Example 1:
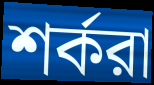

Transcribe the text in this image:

শর্করা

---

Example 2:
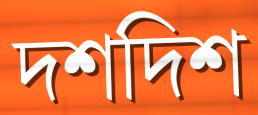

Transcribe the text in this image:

দশদিশ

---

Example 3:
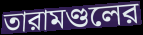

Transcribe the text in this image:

তারামণ্ডলের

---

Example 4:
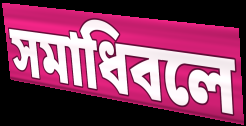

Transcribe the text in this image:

সমাধিবলে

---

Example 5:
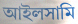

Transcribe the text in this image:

আইলসামি